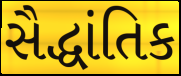
સૈદ્ધાંતિક